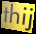
thij